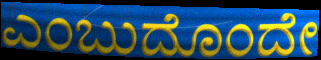
ಎಂಬುದೊಂದೇ